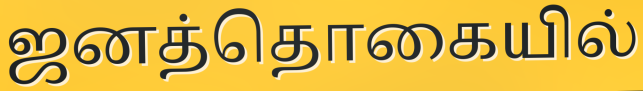
ஜனத்தொகையில்